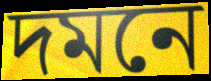
দমনে